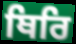
ਥਿਰਿ